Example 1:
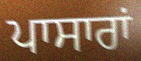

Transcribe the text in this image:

ਪਾਸਾਰਾਂ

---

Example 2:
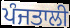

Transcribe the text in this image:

ਪੰਜਤਾਲੀ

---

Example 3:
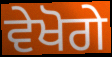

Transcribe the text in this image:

ਵੇਖੋਗੇ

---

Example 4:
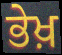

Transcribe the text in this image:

ਭੇਖ਼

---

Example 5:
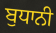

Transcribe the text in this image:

ਬੁਧਾਨੀ